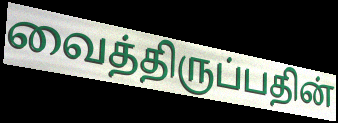
வைத்திருப்பதின்